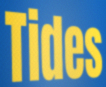
Tides